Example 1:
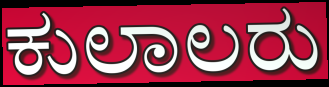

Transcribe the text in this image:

ಕುಲಾಲರು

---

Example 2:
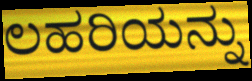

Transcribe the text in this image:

ಲಹರಿಯನ್ನು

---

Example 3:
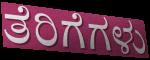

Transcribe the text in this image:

ತೆರಿಗೆಗಳು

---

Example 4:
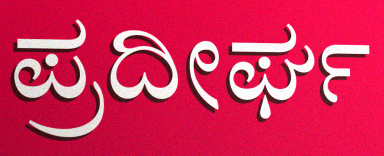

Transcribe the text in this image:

ಪ್ರದೀರ್ಘ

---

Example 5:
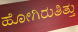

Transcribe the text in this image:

ಹೋಗಿರುತಿತ್ತು